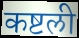
कष्टली